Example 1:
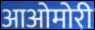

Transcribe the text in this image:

आओमोरी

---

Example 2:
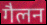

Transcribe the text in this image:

गैलन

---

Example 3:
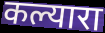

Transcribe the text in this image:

कल्यारा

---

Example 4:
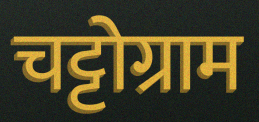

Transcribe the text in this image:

चट्टोग्राम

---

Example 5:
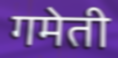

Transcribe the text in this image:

गमेती